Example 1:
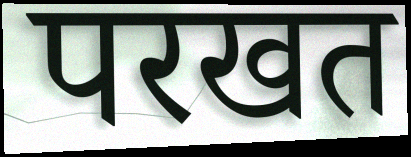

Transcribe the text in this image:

परखत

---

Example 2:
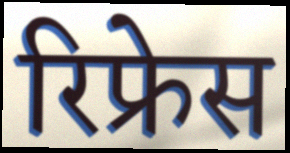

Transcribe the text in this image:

रिफ्रेस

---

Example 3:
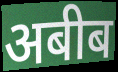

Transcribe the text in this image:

अबीब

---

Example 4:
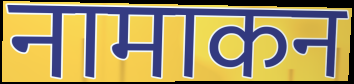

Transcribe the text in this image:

नामाकन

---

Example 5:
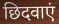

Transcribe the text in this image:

छिदवाएं